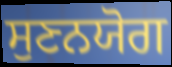
ਸੁਣਨਯੋਗ